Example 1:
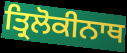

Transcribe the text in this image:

ਤ੍ਰਿਲੋਕੀਨਾਥ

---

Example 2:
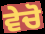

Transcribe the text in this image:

ਵੇਚੋ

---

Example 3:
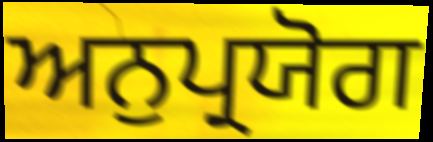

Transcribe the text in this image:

ਅਨੁਪ੍ਰਯੋਗ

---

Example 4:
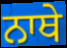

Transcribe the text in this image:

ਨਾਥੇ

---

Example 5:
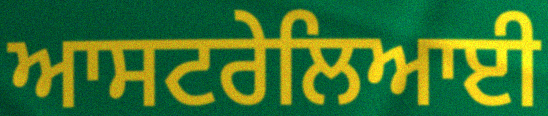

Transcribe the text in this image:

ਆਸਟਰੇਲਿਆਈ